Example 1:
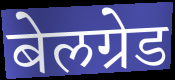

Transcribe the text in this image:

बेलग्रेड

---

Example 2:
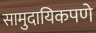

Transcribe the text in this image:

सामुदायिकपणे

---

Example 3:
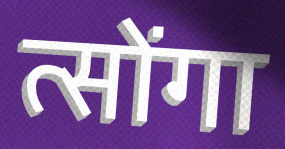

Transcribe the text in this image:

त्सोंगा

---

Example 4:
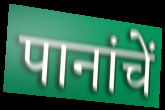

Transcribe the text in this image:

पानांचें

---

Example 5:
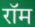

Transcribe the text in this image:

रॉम